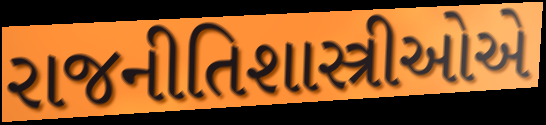
રાજનીતિશાસ્ત્રીઓએ